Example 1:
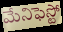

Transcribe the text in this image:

మేనిఫెస్టో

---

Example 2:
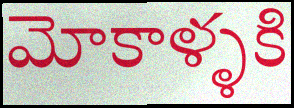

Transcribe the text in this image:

మోకాళ్ళకి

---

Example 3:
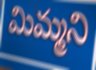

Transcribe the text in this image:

మిమ్మని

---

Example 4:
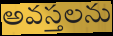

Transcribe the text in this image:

అవస్తలను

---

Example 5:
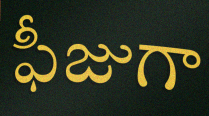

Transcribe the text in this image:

ఫీజుగా